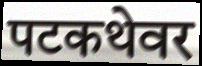
पटकथेवर